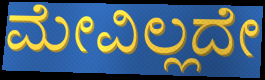
ಮೇವಿಲ್ಲದೇ